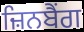
ਜ਼ਿਨਬੈਂਗ